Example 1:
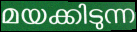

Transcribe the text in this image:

മയക്കിടുന്ന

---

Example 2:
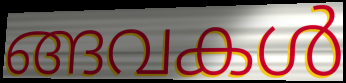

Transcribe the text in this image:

ങ്ങവകൾ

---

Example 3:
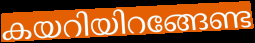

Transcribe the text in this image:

കയറിയിറങ്ങേണ്ട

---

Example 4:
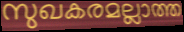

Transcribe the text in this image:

സുഖകരമല്ലാത്ത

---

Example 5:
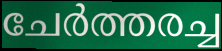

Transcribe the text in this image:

ചേർത്തരച്ച